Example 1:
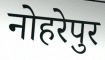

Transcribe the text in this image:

नोहरेपुर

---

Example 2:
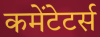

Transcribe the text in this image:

कमेंटेटर्स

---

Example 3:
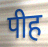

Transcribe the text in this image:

पीह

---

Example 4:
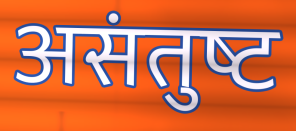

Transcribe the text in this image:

असंतुष्‍ट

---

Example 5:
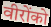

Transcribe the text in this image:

वीरोंको